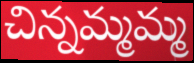
చిన్నమ్మమ్మ